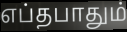
எப்தபாதும்